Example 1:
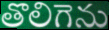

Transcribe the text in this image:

తొలిగెను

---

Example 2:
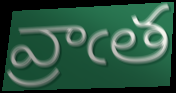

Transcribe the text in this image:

వ్రాఁత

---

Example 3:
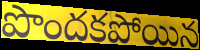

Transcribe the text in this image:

పొందకపోయిన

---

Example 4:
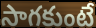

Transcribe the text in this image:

సాగకుంటే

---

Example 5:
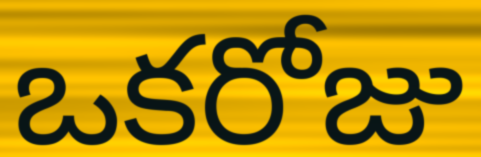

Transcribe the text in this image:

ఒకరోజు